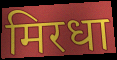
मिरधा